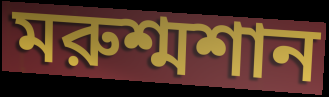
মরুশ্মশান